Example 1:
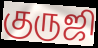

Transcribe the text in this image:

குருஜி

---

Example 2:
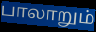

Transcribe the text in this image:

பாலாறும்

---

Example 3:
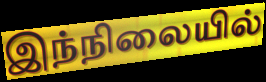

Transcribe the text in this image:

இந்நிலையில்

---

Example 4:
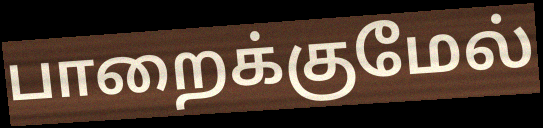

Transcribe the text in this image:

பாறைக்குமேல்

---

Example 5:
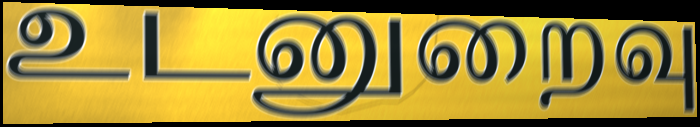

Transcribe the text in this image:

உடனுறைவு